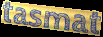
tasmat